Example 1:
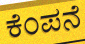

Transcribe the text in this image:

ಕೆಂಪನೆ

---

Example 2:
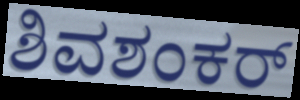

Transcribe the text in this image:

ಶಿವಶಂಕರ್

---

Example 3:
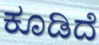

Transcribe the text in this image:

ಕೂಡಿದೆ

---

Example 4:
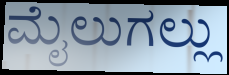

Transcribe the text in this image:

ಮೈಲುಗಲ್ಲು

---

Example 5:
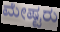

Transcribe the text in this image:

ಮೇಷ್ಟರು